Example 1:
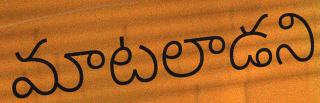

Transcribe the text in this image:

మాటలాడని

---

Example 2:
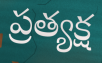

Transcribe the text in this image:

ప్రత్యక్ష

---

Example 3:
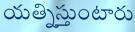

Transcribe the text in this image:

యత్నిస్తుంటారు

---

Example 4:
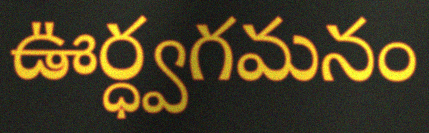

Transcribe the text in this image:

ఊర్ధ్వగమనం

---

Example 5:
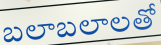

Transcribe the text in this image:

బలాబలాలతో